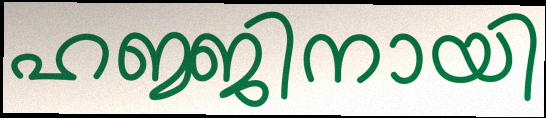
ഹജ്ജിനായി